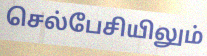
செல்பேசியிலும்